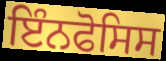
ਇੰਨਫੋਸਿਸ